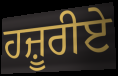
ਹਜ਼ੂਰੀਏ